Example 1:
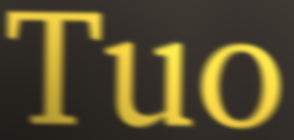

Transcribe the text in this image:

Tuo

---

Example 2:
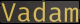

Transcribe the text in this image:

Vadam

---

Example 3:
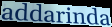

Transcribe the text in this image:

addarinda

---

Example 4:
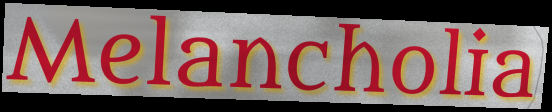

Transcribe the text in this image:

Melancholia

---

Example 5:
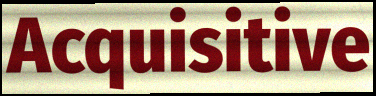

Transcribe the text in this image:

Acquisitive